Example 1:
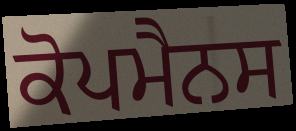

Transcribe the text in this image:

ਕੋਪਮੈਨਸ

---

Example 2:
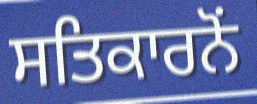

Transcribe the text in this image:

ਸਤਿਕਾਰਨੋਂ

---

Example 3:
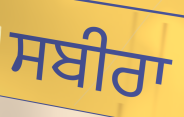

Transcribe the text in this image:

ਸਬੀਰਾ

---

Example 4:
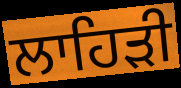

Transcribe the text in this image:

ਲਾਹਿੜੀ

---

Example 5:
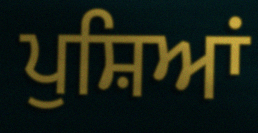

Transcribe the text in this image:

ਪੁਸ਼ਿਆਂ